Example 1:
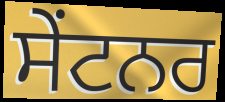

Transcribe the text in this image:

ਸੇਂਟਨਰ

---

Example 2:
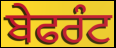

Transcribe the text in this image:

ਬੇਫਰੰਟ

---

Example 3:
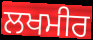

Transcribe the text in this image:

ਲਖਮੀਰ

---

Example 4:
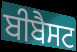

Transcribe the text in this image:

ਬੀਬੈਸਟ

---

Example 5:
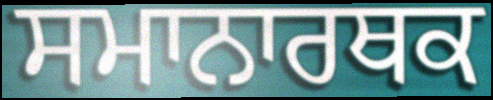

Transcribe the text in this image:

ਸਮਾਨਾਰਥਕ